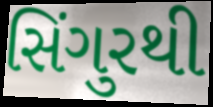
સિંગુરથી